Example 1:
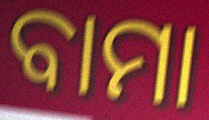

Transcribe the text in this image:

ବାମା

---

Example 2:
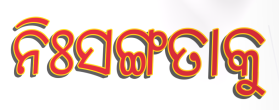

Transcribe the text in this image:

ନିଃସଙ୍ଗତାକୁ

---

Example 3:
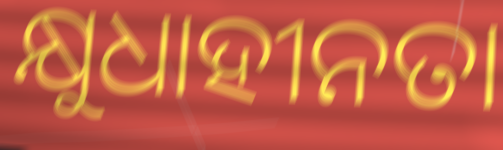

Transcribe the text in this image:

କ୍ଷୁଧାହୀନତା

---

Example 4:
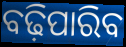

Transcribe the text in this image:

ବଢ଼ିପାରିବ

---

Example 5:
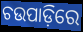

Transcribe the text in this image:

ଚଉପାଡ଼ିରେ